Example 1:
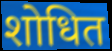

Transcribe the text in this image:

शोधित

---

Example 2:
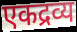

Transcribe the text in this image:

एकद्रव्य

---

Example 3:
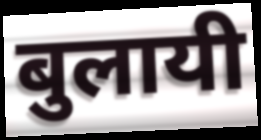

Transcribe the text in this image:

बुलायी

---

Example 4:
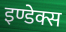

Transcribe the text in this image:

इण्डेक्स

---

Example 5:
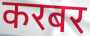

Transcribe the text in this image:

करबर